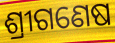
ଶ୍ରୀଗଣେଷ